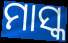
ମାସ୍କ